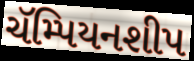
ચૅમ્પિયનશીપ